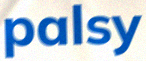
palsy